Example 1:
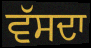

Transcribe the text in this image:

ਵੱਸਦਾ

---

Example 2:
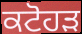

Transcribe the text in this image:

ਕਟੋਹੜ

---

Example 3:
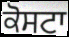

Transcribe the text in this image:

ਕੋਸਟਾ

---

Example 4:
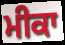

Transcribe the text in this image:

ਮੀਕਾ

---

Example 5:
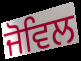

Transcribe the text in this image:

ਜੋਵਿਲ